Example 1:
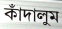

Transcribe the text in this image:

কাঁদালুম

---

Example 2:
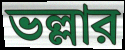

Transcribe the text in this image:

ভল্লার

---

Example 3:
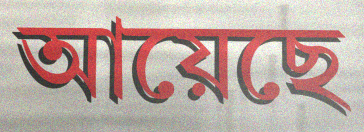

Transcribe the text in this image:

আয়েছে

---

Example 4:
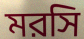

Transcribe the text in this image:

মরসি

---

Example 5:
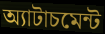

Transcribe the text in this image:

অ্যাটাচমেন্ট